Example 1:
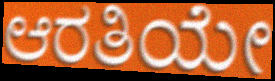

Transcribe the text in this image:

ಆರತಿಯೇ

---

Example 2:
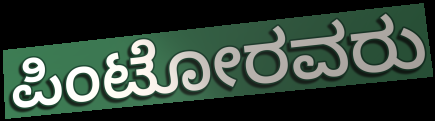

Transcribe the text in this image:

ಪಿಂಟೋರವರು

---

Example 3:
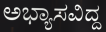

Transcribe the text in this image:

ಅಭ್ಯಾಸವಿದ್ದ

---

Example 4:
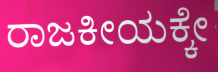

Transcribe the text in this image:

ರಾಜಕೀಯಕ್ಕೇ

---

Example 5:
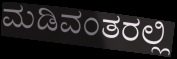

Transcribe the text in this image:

ಮಡಿವಂತರಲ್ಲಿ